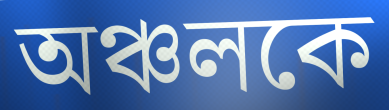
অঞ্চলকে